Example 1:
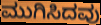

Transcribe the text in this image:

ಮುಗಿಸಿದವು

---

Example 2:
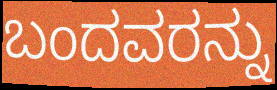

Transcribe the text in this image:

ಬಂದವರನ್ನು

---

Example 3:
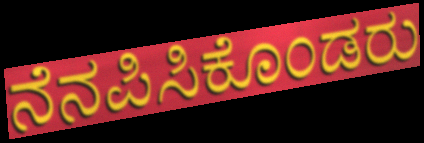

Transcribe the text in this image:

ನೆನಪಿಸಿಕೊಂಡರು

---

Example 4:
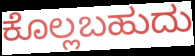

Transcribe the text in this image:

ಕೊಲ್ಲಬಹುದು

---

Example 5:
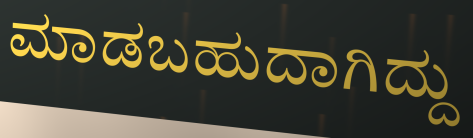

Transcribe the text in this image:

ಮಾಡಬಹುದಾಗಿದ್ದು